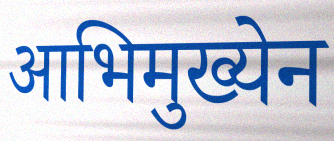
आभिमुख्येन